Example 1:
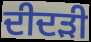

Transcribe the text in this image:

ਦੀਦੜੀ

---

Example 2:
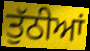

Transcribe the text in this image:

ਤੁੱਠੀਆਂ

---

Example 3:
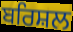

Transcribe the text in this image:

ਬਰਿਸ਼ਲ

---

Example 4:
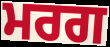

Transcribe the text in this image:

ਮਰਗ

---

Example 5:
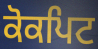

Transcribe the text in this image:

ਕੋਕਪਿਟ